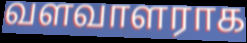
வளவாளராக